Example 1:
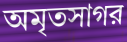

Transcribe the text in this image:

অমৃতসাগর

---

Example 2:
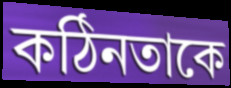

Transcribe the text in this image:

কঠিনতাকে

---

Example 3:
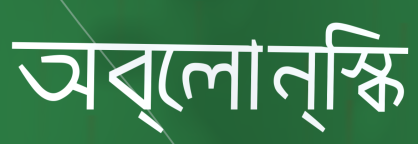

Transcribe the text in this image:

অব্‌লোন্‌স্কি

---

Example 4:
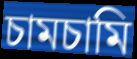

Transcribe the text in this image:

চামচামি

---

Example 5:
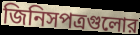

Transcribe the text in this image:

জিনিসপত্রগুলোর